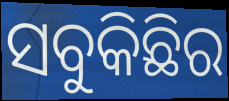
ସବୁକିଛିର